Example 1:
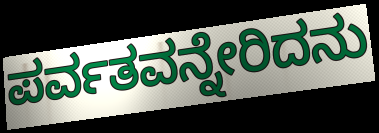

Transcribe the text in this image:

ಪರ್ವತವನ್ನೇರಿದನು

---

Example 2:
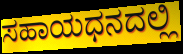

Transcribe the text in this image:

ಸಹಾಯಧನದಲ್ಲಿ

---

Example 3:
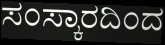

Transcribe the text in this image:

ಸಂಸ್ಕಾರದಿಂದ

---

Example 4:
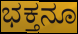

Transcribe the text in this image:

ಭಕ್ತನೂ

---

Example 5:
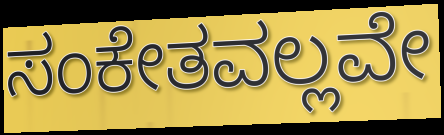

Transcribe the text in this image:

ಸಂಕೇತವಲ್ಲವೇ